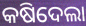
କଷିଦେଲା